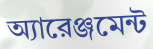
অ্যারেঞ্জমেন্ট